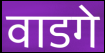
वाडगे